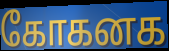
கோகனக